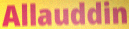
Allauddin